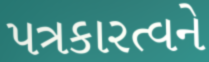
પત્રકારત્વને